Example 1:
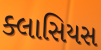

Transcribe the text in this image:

ક્લાસિયસ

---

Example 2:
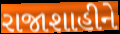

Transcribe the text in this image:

રાજાશાહીને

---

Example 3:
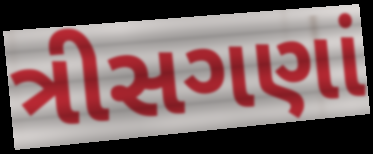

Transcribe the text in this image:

ત્રીસગણાં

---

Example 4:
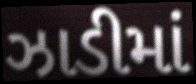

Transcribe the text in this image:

ઝાડીમાં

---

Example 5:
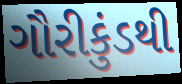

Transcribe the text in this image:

ગૌરીકુંડથી